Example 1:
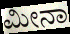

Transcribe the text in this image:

ಮೀನಾ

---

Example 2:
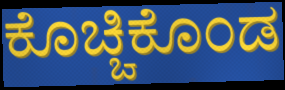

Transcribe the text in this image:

ಕೊಚ್ಚಿಕೊಂಡ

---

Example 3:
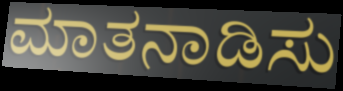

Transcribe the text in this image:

ಮಾತನಾಡಿಸು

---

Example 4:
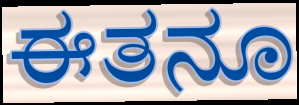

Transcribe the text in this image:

ಈತನೂ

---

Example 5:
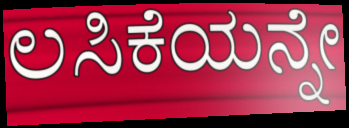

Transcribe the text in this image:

ಲಸಿಕೆಯನ್ನೇ